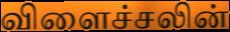
விளைச்சலின்